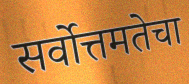
सर्वोत्तमतेचा